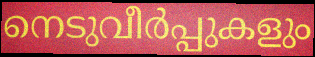
നെടുവീർപ്പുകളും